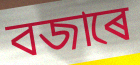
বজাৰে